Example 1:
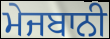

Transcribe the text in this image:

ਮੇਜਬਾਨੀ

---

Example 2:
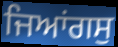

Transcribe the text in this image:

ਜਿਆਂਗਸੁ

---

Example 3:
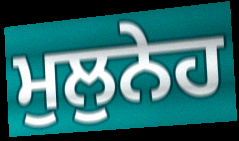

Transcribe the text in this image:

ਮੁਲੁਨੇਹ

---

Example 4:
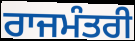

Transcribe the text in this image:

ਰਾਜਮੰਤਰੀ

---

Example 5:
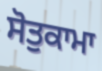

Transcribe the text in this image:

ਸੋਤੁਕਾਮਾ